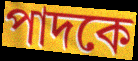
পাদকে